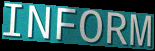
INFORM